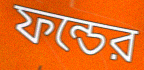
ফন্ডের